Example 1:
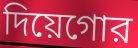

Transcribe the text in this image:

দিয়েগোর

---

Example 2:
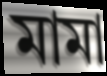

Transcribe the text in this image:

মামা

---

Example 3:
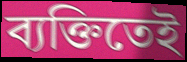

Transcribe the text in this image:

ব্যক্তিতেই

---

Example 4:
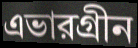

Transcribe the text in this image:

এভারগ্রীন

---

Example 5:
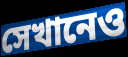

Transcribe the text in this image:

সেখানেও